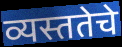
व्यस्ततेचे